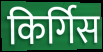
किर्गिस